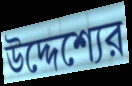
উদ্দেশ্যের